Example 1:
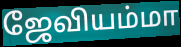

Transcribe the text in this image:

ஜேவியம்மா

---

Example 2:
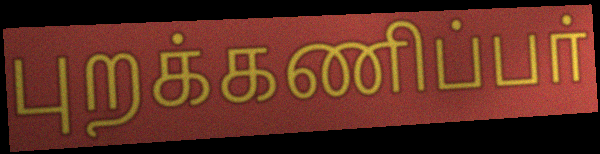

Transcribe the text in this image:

புறக்கணிப்பர்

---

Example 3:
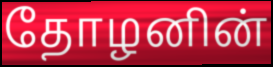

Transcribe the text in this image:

தோழனின்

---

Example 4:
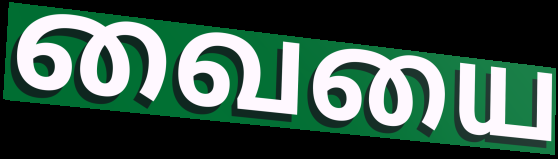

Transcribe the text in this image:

வையை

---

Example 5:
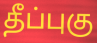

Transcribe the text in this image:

தீப்புகு